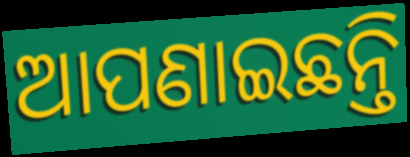
ଆପଣାଇଛନ୍ତି